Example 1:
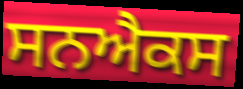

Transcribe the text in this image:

ਸਨਐਕਸ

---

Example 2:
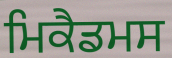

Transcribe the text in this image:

ਮਿਕੈਡਮਸ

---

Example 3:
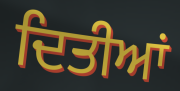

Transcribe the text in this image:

ਦਿਤੀਆਂ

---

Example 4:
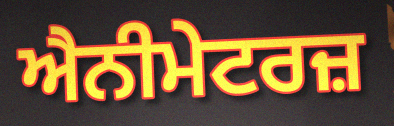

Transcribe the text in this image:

ਐਨੀਮੇਟਰਜ਼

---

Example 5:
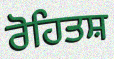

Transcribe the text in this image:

ਰੋਹਿਤਸ਼